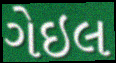
ગેઇલ